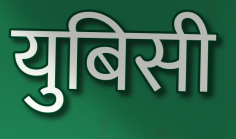
युबिसी